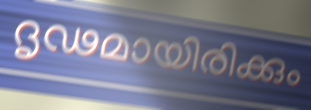
ദൃഢമായിരിക്കും